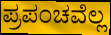
ಪ್ರಪಂಚವೆಲ್ಲ